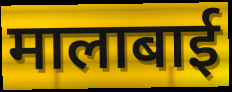
मालाबाई